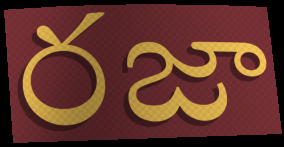
రజా